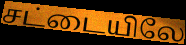
சட்டையிலே